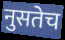
नुसतेच